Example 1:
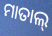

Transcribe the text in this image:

ମାତାଲ୍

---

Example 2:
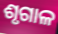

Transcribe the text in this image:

ଶୃଗାଳ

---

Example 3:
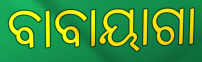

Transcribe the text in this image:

ବାବାୟାଗା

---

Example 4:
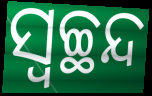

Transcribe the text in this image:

ସ୍ୱଚ୍ଛନ୍ଦ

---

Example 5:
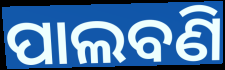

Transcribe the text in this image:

ପାଲବଣି